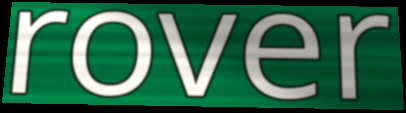
rover